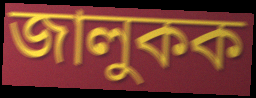
জালুকক